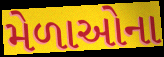
મેળાઓના